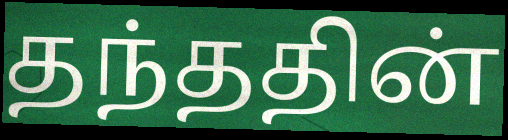
தந்ததின்